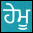
ਹੇਮੂ